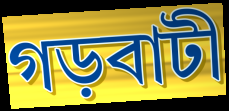
গড়বাটী